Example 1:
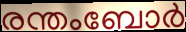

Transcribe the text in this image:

രന്തംബോർ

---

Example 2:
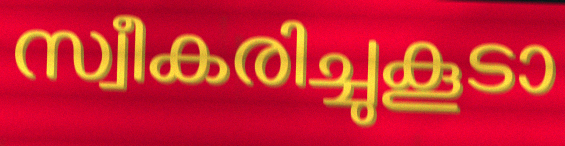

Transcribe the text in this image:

സ്വീകരിച്ചുകൂടാ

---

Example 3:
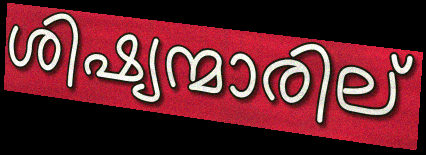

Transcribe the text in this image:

ശിഷ്യന്മാരില്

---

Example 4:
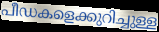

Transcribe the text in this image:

പീഡകളെക്കുറിച്ചുള്ള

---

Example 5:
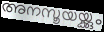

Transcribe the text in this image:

അനസൂയയ്ക്കും